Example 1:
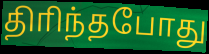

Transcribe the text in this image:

திரிந்தபோது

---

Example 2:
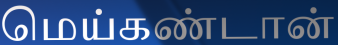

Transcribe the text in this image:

மெய்கண்டான்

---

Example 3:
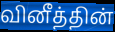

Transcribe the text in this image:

வினீத்தின்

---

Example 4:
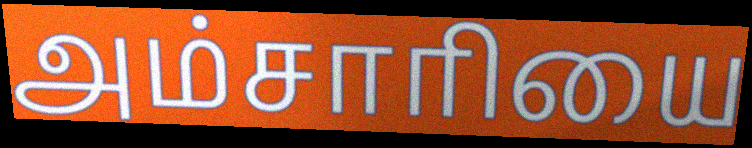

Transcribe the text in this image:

அம்சாரியை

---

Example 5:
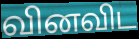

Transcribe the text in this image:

வினவிட